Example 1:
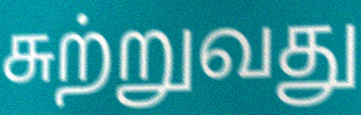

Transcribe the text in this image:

சுற்றுவது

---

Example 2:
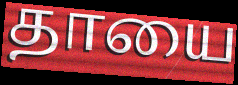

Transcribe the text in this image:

தாயை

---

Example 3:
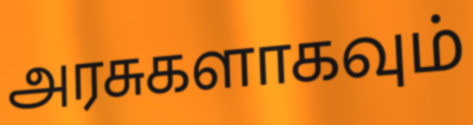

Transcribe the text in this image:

அரசுகளாகவும்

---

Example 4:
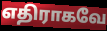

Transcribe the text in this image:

எதிராகவே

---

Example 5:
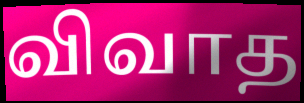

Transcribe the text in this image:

விவாத